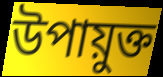
উপায়ুক্ত